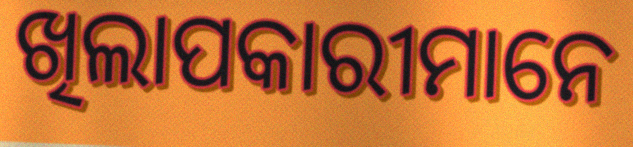
ଖିଲାପକାରୀମାନେ